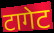
टागेट